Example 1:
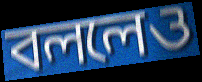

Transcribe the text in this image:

বললেও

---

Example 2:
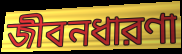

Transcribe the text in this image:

জীবনধারণা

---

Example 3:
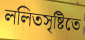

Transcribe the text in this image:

ললিতসৃষ্টিতে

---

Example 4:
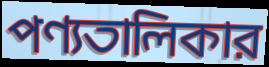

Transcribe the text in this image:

পণ্যতালিকার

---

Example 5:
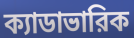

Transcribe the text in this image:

ক্যাডাভারিক